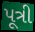
પૂત્રી